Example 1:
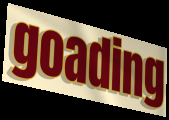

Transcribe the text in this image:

goading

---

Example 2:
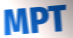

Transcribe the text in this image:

MPT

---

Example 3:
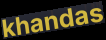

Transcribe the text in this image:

khandas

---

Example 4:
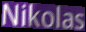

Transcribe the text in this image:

Nikolas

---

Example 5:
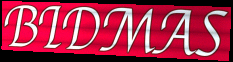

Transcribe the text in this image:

BIDMAS